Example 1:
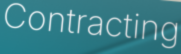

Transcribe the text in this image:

Contracting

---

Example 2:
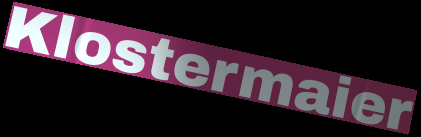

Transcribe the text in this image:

Klostermaier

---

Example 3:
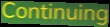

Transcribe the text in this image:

Continuing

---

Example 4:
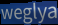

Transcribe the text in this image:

weglya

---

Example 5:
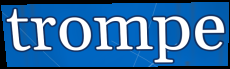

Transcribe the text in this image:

trompe